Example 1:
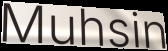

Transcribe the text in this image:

Muhsin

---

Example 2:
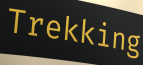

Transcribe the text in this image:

Trekking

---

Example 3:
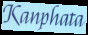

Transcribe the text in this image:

Kanphata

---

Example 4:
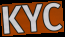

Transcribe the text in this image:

KYC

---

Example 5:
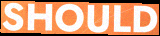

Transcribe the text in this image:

SHOULD